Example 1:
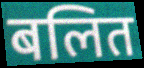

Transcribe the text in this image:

बलित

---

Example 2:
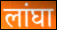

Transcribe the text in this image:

लांघा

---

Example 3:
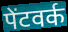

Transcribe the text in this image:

पेंटवर्क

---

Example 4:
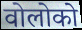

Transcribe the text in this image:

वोलोको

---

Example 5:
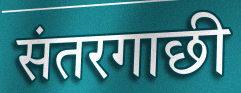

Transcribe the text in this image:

संतरगाछी